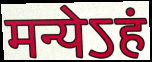
मन्येऽहं